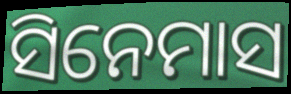
ସିନେମାସ